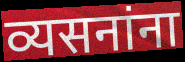
व्यसनांना